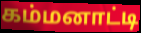
கம்மனாட்டி